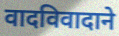
वादविवादाने